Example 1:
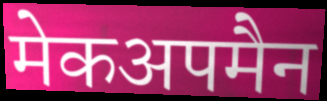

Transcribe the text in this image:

मेकअपमैन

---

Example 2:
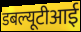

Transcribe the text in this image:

डबल्यूटीआई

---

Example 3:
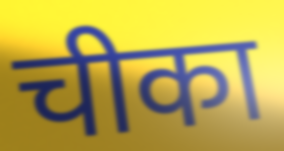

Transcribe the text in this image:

चीका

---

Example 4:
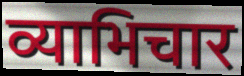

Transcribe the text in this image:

व्याभिचार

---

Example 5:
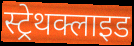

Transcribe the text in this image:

स्ट्रेथक्लाइड